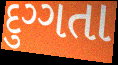
દુગ્ગતા